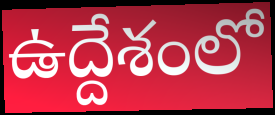
ఉద్దేశంలో